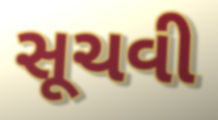
સૂચવી